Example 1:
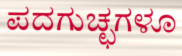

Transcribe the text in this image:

ಪದಗುಚ್ಛಗಳೂ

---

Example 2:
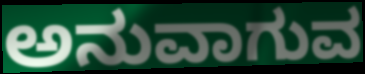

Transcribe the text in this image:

ಅನುವಾಗುವ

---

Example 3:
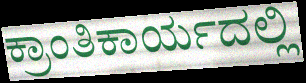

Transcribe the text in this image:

ಕ್ರಾಂತಿಕಾರ್ಯದಲ್ಲಿ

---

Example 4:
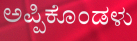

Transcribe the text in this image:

ಅಪ್ಪಿಕೊಂಡಳು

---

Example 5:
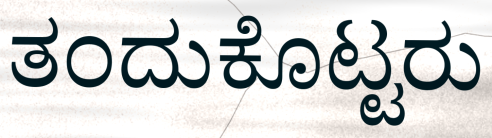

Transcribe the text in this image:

ತಂದುಕೊಟ್ಟರು